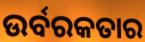
ଉର୍ବରକତାର